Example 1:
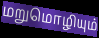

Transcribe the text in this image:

மறுமொழியும்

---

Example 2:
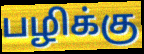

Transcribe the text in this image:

பழிக்கு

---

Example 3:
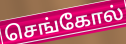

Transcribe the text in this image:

செங்கோல்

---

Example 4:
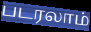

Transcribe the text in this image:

படரலாம்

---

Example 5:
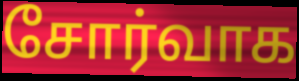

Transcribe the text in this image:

சோர்வாக